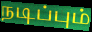
நடிப்பும்